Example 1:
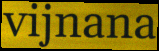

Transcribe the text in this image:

vijnana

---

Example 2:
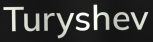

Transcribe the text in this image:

Turyshev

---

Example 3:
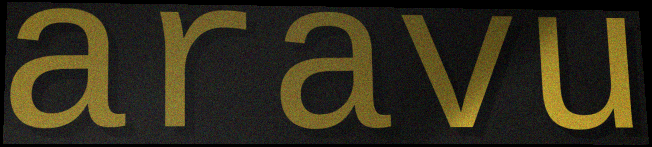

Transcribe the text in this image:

aravu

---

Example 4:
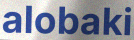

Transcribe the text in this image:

alobaki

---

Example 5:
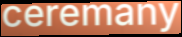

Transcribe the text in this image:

ceremany